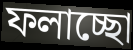
ফলাচ্ছো